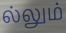
ல்லும்